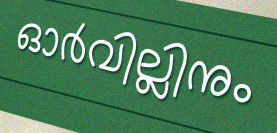
ഓർവില്ലിനും